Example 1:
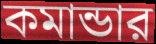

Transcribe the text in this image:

কমান্ডার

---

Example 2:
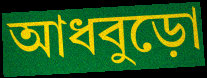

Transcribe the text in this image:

আধবুড়ো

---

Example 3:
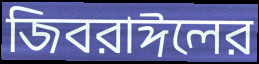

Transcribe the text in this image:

জিবরাঈলের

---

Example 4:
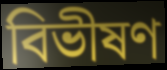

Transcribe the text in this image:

বিভীষণ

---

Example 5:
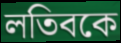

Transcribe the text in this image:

লতিবকে